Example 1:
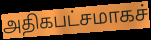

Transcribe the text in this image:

அதிகபட்சமாகச்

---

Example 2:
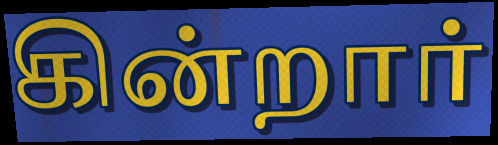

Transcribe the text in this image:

கின்றார்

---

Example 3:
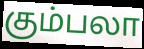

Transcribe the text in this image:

கும்பலா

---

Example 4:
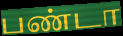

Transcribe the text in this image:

பண்டா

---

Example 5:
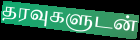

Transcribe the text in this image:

தரவுகளுடன்